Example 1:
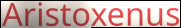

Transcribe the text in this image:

Aristoxenus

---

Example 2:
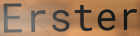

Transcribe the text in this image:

Erster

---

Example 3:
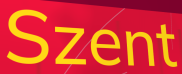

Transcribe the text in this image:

Szent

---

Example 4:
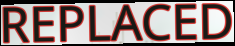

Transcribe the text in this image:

REPLACED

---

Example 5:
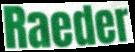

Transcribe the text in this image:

Raeder